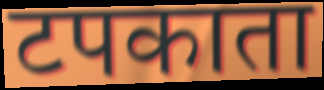
टपकाता